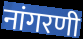
नांगरणी